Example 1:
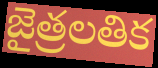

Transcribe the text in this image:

జైత్రలతిక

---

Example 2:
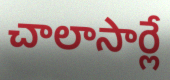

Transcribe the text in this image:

చాలాసార్లే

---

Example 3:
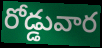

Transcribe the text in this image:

రోడ్డువార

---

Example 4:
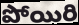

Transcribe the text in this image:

పోయిరి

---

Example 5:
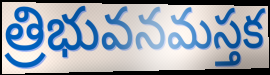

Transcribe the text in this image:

త్రిభువనమస్తక